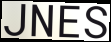
JNES